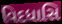
વિદધાસિ